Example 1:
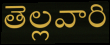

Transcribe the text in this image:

తెల్లవారి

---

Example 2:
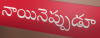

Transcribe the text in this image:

నాయినెప్పుడూ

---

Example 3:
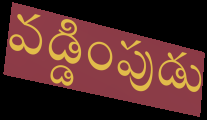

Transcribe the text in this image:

వడ్డింపుడు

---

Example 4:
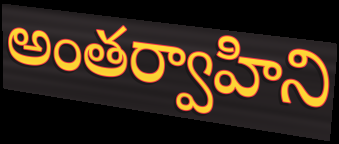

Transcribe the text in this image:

అంతర్వాహిని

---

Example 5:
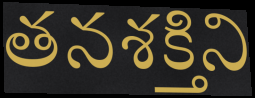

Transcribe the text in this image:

తనశక్తిని